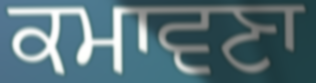
ਕਮਾਵਣਾ